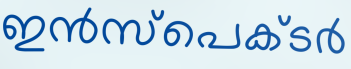
ഇൻസ്പെക്ടർ